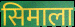
सिमाला